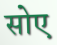
सोए